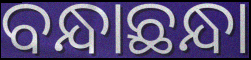
ବନ୍ଧାଛନ୍ଧା